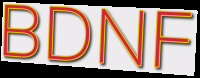
BDNF